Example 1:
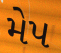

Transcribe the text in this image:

મેપ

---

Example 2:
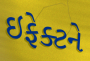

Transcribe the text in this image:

ઇફેક્ટને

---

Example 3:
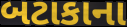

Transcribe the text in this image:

બટાકાના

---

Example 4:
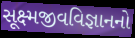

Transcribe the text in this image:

સૂક્ષ્મજીવવિજ્ઞાનનો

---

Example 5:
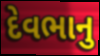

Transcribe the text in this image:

દેવભાનુ